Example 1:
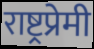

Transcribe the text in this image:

राष्ट्रप्रेमी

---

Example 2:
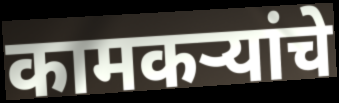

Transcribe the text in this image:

कामकऱ्यांचे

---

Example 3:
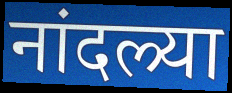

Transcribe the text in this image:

नांदल्या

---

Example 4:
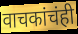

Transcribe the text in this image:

वाचकांचंही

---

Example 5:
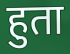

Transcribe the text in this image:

हुता